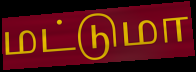
மட்டுமா